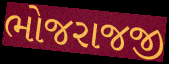
ભોજરાજજી